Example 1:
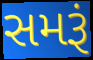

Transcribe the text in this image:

સમરૂં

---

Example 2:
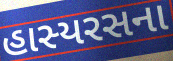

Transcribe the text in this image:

હાસ્યરસના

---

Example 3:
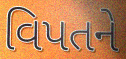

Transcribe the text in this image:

વિપતને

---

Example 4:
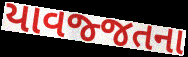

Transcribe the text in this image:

યાવજ્જતના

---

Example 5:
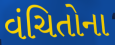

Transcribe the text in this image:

વંચિતોના